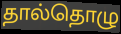
தால்தொழு